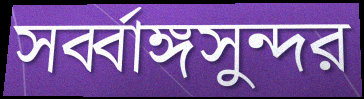
সর্ব্বাঙ্গসুন্দর